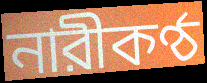
নারীকণ্ঠ